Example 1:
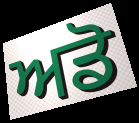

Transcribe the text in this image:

ਅਡੋ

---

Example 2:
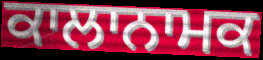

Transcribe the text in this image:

ਕਾਲਾਨਾਮਕ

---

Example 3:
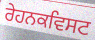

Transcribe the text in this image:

ਰੇਹਨਕਵਿਸਟ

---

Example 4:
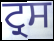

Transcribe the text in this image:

ਟ੍ਰਸ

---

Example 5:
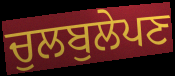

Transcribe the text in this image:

ਚੁਲਬੁਲੇਪਣ